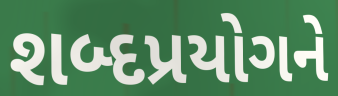
શબ્દપ્રયોગને